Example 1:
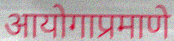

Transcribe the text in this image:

आयोगाप्रमाणे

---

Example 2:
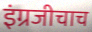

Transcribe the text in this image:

इंग्रजीचाच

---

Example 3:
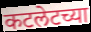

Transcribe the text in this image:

कटलेटच्या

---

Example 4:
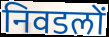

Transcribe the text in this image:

निवडलों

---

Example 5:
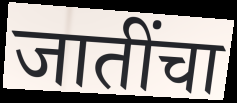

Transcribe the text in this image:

जातींचा